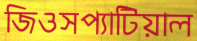
জিওসপ্যাটিয়াল